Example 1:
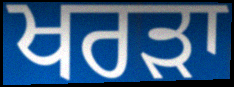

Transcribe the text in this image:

ਖਰੜਾ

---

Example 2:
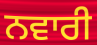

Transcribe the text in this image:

ਨਵਾਰੀ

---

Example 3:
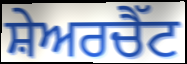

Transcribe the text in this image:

ਸ਼ੇਅਰਚੈੱਟ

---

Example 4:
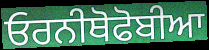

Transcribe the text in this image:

ਓਰਨੀਥੋਫੋਬੀਆ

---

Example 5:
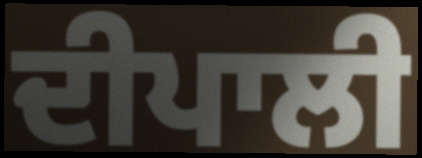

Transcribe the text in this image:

ਦੀਪਾਲੀ